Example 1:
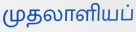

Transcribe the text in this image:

முதலாளியப்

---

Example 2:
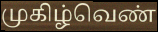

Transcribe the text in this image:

முகிழ்வெண்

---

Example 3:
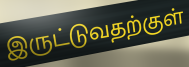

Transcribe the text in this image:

இருட்டுவதற்குள்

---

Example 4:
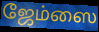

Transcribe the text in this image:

ஜேம்ஸை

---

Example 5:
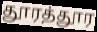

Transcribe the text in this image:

தூரத்தூர